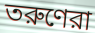
তরুণেরা